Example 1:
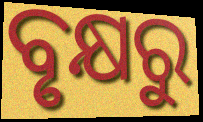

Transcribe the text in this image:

ବୃକ୍ଷରୁ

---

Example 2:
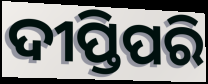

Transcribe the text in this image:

ଦୀପ୍ତିପରି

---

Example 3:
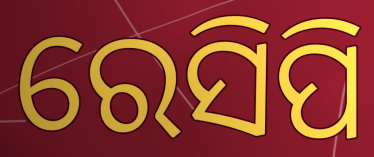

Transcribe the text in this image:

ରେସିପି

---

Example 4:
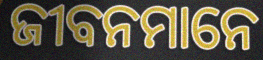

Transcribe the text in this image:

ଜୀବନମାନେ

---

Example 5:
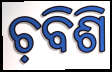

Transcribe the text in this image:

ଚ଼ବିଶି